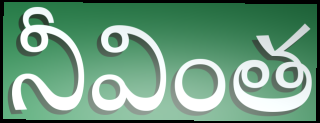
నీవింత